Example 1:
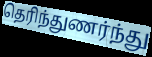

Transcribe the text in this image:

தெரிந்துணர்ந்து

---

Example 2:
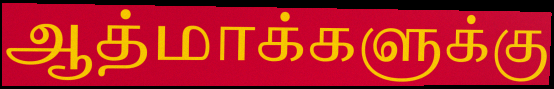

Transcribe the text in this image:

ஆத்மாக்களுக்கு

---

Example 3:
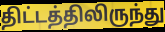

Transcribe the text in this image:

திட்டத்திலிருந்து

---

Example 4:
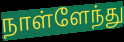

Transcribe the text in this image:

நாள்ளேந்து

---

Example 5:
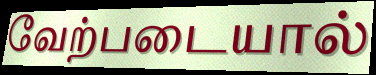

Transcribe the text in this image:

வேற்படையால்